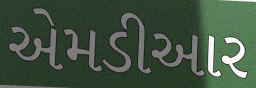
એમડીઆર